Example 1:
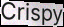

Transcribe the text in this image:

Crispy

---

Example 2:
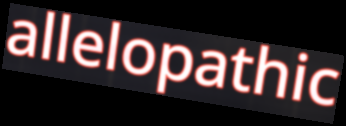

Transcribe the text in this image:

allelopathic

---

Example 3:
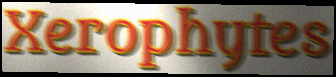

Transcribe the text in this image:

Xerophytes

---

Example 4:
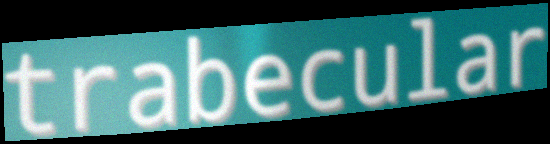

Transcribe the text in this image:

trabecular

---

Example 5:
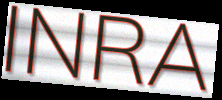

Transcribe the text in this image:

INRA